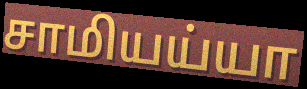
சாமியய்யா